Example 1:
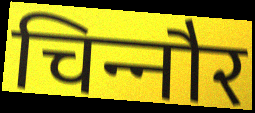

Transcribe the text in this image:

चिन्‍नौर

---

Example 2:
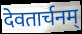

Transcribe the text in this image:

देवतार्चनम्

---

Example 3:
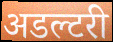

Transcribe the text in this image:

अडल्टरी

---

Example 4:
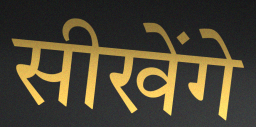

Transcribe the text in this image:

सीखेंगे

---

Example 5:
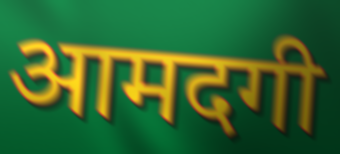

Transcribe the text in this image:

आमदगी